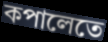
কপালেতে